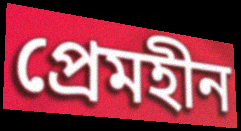
প্রেমহীন